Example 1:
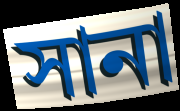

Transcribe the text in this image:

সানা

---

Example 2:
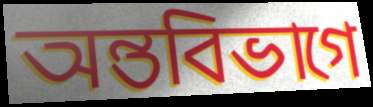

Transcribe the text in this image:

অন্তবিভাগে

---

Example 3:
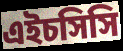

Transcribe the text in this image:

এইচসিসি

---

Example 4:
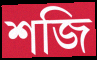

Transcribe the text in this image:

শজি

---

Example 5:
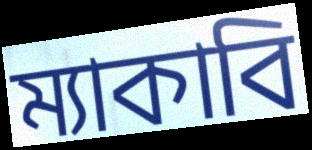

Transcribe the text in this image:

ম্যাকাবি